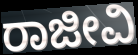
ರಾಜೀವಿ